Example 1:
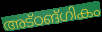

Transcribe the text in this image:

അട്ഠങ്ഗികം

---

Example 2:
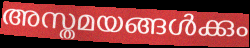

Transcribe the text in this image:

അസ്തമയങ്ങൾക്കും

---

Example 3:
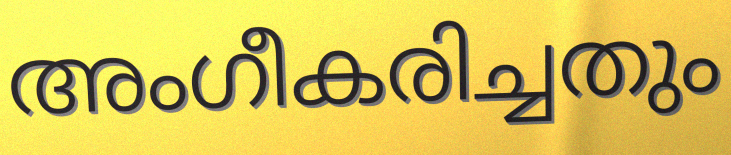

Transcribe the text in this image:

അംഗീകരിച്ചതും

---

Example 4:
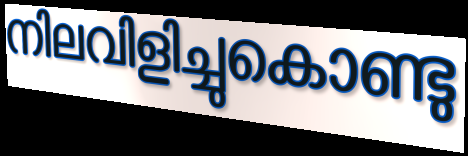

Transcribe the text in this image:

നിലവിളിച്ചുകൊണ്ടു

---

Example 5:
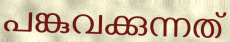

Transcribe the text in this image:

പങ്കുവക്കുന്നത്